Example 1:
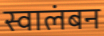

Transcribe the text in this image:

स्वालंबन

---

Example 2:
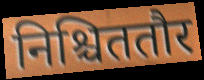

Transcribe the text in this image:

निश्चिततौर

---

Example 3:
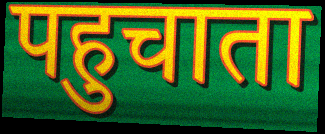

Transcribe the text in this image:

पहुचाता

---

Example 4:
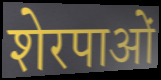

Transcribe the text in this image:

शेरपाओं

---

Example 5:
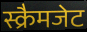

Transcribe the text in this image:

स्‍क्रैमजेट